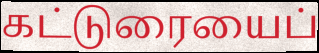
கட்டுரையைப்